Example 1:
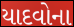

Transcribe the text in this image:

યાદવોના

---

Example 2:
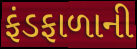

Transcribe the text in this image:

ફંડફાળાની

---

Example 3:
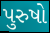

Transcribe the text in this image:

પુરુષો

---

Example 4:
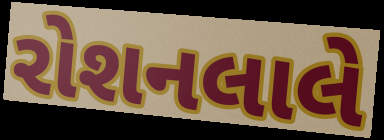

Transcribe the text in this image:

રોશનલાલે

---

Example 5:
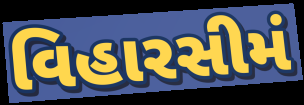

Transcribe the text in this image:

વિહારસીમં